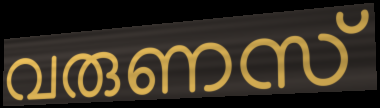
വരുണസ്